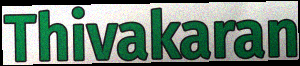
Thivakaran